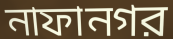
নাফানগর